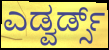
ಎಡ್ವರ್ಡ್ಸ್